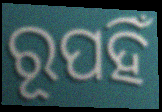
ରୂପହିଁ